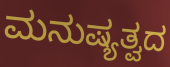
ಮನುಷ್ಯತ್ವದ